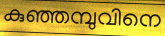
കുഞ്ഞമ്പുവിനെ